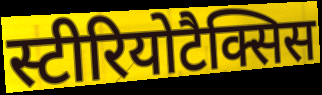
स्टीरियोटैक्सिस